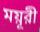
ময়ূরী